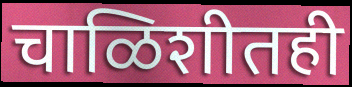
चाळिशीतही